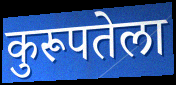
कुरूपतेला